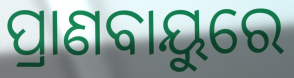
ପ୍ରାଣବାୟୁରେ